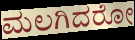
ಮಲಗಿದರೋ